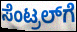
ಸೆಂಟ್ರಲ್‌ಗೆ